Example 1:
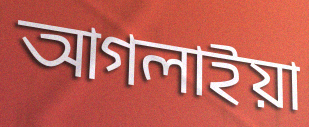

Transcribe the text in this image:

আগলাইয়া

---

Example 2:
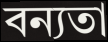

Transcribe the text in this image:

বন্যতা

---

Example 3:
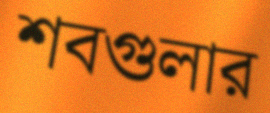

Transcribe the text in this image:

শবগুলার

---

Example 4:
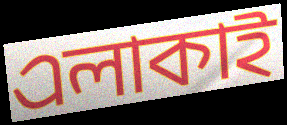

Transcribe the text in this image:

এলাকাই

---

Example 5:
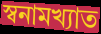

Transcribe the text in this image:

স্বনামখ্যাত